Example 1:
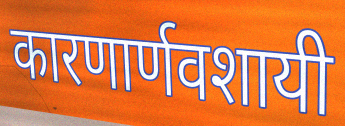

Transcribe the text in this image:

कारणार्णवशायी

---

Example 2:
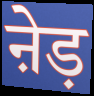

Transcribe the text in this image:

ऩेड़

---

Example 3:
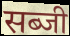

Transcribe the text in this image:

सब्जी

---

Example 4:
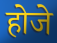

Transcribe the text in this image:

होजे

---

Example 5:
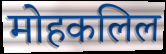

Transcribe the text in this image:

मोहकलिल